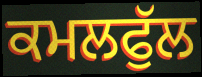
ਕਮਲਫੁੱਲ